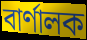
বাৰ্ণালক